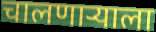
चालणाऱ्याला